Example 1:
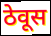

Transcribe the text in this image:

ठेवूस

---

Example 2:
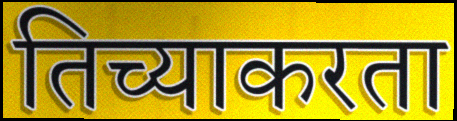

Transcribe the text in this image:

तिच्याकरता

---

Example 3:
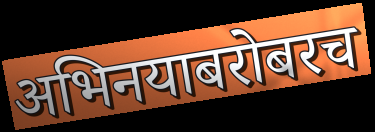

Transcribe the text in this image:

अभिनयाबरोबरच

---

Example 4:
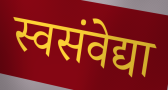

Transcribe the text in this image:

स्वसंवेद्या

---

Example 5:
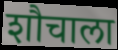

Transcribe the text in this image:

शौचाला